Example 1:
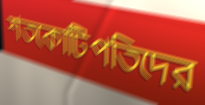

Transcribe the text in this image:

শতকোটিপতিদের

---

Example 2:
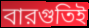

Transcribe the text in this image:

বারগুতিই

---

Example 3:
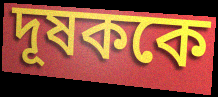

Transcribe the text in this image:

দূষককে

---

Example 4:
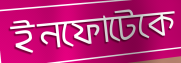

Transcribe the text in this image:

ইনফোটেকে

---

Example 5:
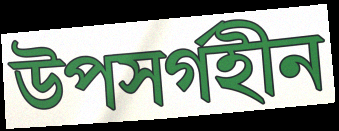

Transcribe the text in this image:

উপসর্গহীন